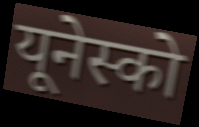
यूनेस्को